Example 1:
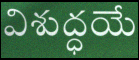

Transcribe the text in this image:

విశుద్ధయే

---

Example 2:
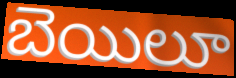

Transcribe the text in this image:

బెయిలూ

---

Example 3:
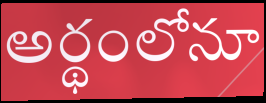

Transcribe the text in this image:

అర్థంలోనూ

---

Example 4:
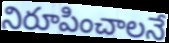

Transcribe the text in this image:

నిరూపించాలనే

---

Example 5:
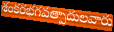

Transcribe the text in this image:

శంకరభగవత్పాదులవారు